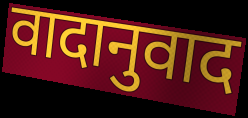
वादानुवाद